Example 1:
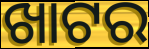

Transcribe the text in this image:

ଖାଟର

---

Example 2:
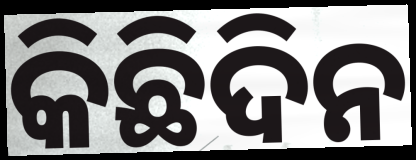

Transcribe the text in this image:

କିଛିଦିନ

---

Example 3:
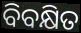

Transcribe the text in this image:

ବିବକ୍ଷିତ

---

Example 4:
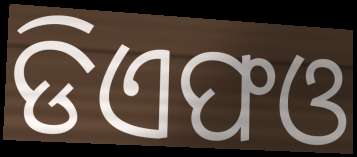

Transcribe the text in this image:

ଡିଏଫଓ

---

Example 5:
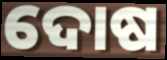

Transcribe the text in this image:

ଦୋଷ